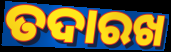
ତଦାରଖ